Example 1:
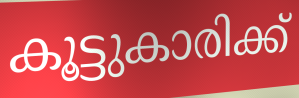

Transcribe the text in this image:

കൂട്ടുകാരിക്ക്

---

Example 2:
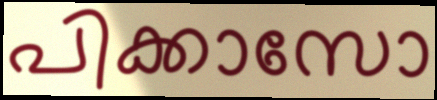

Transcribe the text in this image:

പിക്കാസോ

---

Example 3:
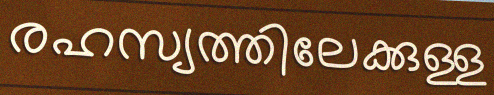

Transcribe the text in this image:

രഹസ്യത്തിലേക്കുള്ള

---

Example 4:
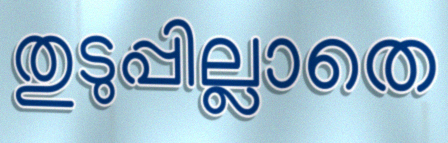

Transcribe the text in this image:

തുടുപ്പില്ലാതെ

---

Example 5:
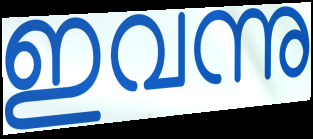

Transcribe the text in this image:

ഇവന്നു